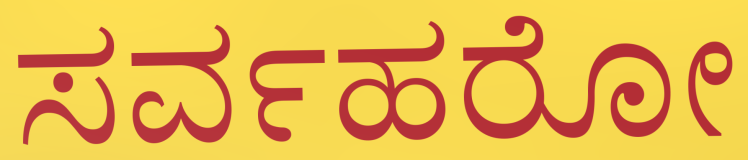
ಸರ್ವಹರೋ